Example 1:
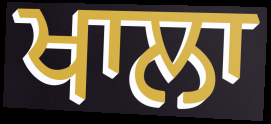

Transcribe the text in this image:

ਖਾਲਾ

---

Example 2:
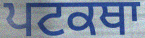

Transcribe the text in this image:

ਪਟਕਥਾ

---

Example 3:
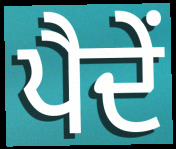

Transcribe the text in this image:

ਪੈਦੇਂ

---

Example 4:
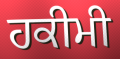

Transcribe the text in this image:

ਹਕੀਮੀ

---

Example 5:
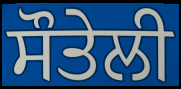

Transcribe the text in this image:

ਸੌਤੇਲੀ